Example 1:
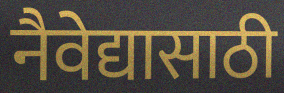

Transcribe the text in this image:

नैवेद्यासाठी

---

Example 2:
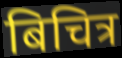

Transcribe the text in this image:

बिचित्र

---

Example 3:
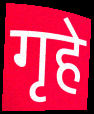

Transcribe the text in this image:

गृहे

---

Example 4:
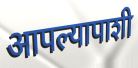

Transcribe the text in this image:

आपल्यापाशी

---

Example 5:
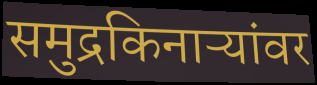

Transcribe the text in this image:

समुद्रकिनाऱ्यांवर